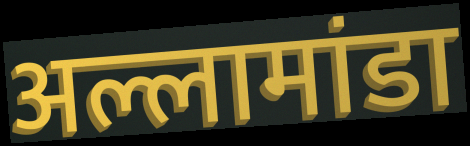
अल्लामांडा